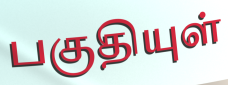
பகுதியுள்